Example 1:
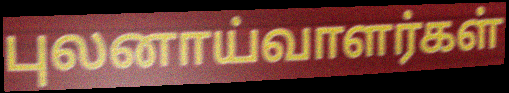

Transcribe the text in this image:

புலனாய்வாளர்கள்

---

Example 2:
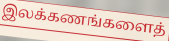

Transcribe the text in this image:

இலக்கணங்களைத்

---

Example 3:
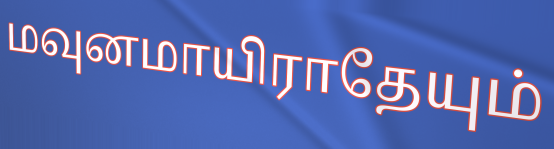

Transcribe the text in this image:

மவுனமாயிராதேயும்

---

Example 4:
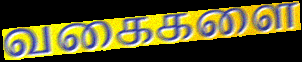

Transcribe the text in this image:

வகைகளை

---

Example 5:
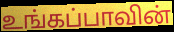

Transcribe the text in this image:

உங்கப்பாவின்